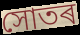
সোতৰ